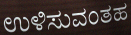
ಉಳಿಸುವಂತಹ